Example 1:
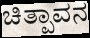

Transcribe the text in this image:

ಚಿತ್ಪಾವನ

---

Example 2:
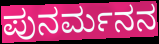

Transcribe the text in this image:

ಪುನರ್ಮನನ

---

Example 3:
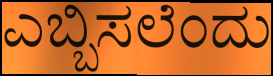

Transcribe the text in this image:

ಎಬ್ಬಿಸಲೆಂದು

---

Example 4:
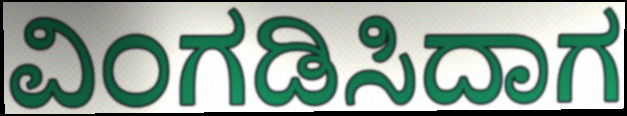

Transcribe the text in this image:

ವಿಂಗಡಿಸಿದಾಗ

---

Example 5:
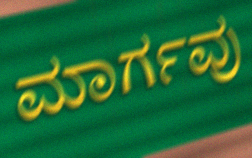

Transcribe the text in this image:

ಮಾರ್ಗವು